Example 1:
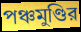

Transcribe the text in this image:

পঞ্চমুণ্ডির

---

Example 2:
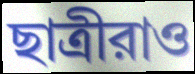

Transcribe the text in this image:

ছাত্রীরাও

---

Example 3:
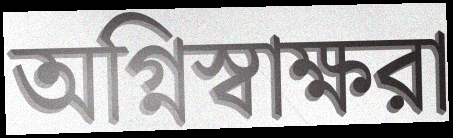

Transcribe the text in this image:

অগ্নিস্বাক্ষরা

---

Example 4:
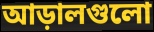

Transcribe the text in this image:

আড়ালগুলো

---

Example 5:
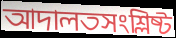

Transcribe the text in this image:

আদালতসংশ্লিষ্ট